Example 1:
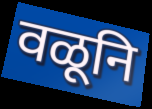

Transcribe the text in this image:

वळूनि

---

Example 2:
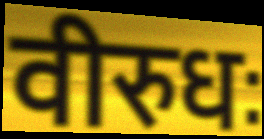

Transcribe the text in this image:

वीरुधः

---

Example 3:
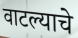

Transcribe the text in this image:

वाटल्याचे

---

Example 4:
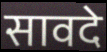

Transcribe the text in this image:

सावदे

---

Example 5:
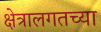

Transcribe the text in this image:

क्षेत्रालगतच्या